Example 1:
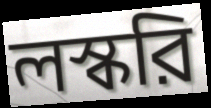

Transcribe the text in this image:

লস্করি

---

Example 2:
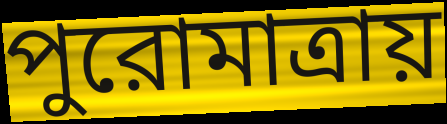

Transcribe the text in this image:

পুরোমাত্রায়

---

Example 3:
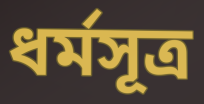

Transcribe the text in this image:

ধর্মসূত্র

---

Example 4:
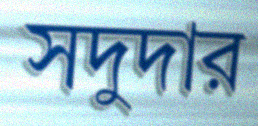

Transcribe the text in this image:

সদুদার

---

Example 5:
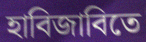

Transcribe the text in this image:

হাবিজাবিতে